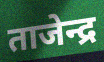
ताजेन्द्र